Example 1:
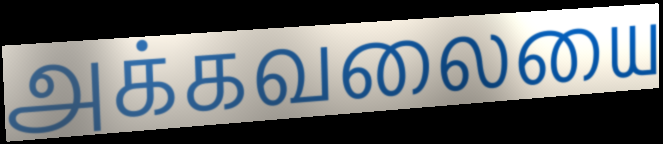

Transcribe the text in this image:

அக்கவலையை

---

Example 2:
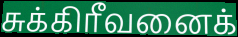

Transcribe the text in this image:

சுக்கிரீவனைக்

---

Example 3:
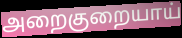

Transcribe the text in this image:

அறைகுறையாய்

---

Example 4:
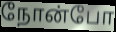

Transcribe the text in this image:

நோன்போ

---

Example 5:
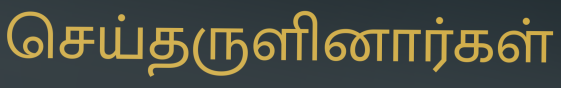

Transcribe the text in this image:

செய்தருளினார்கள்